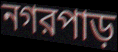
নগরপাড়